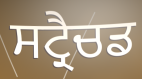
ਸਟ੍ਰੈਚਡ